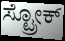
ಸ್ಟ್ರೋಕ್